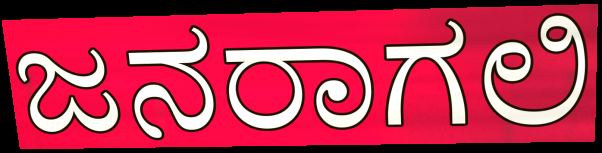
ಜನರಾಗಲಿ